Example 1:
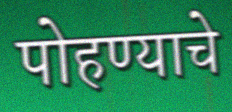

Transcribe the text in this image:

पोहण्याचे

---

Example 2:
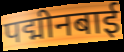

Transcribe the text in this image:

पद्मीनबाई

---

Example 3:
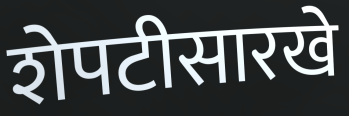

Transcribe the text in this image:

शेपटीसारखे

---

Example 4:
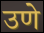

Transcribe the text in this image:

उणे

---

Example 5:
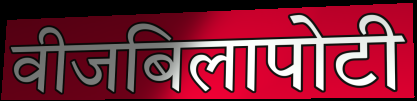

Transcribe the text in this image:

वीजबिलापोटी